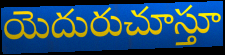
యెదురుచూస్తూ